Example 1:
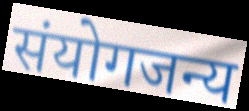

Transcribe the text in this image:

संयोगजन्य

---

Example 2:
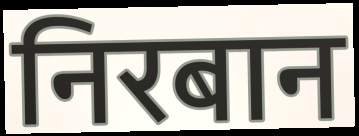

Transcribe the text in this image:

निरबान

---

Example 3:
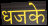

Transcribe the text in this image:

धजके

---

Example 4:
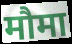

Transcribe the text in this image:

मौमा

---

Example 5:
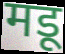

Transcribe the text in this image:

मडू